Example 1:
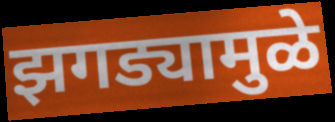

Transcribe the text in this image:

झगड्यामुळे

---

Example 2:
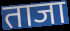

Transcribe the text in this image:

ताजा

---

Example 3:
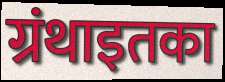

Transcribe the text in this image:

ग्रंथाइतका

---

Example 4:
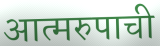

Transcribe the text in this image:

आत्मरुपाची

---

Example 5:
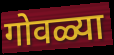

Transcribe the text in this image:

गोवळ्या